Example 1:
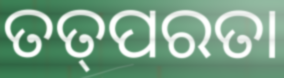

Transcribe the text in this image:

ତତ୍‌ପରତା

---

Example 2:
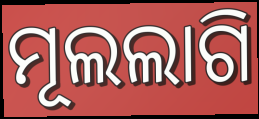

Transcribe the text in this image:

ମୂଲଲାଗି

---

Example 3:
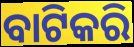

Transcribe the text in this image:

ବାଟିକରି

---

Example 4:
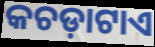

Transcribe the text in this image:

କଚଡ଼ାଟାଏ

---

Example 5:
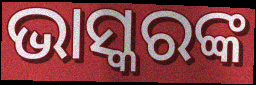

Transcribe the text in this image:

ଭାସ୍କରଙ୍କ